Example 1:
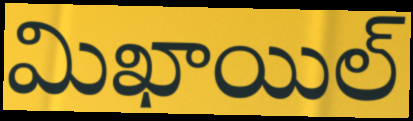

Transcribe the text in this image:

మిఖాయిల్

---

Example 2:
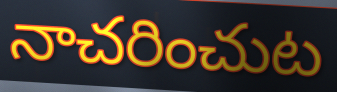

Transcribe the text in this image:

నాచరించుట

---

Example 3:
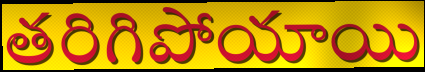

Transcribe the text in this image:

తరిగిపోయాయి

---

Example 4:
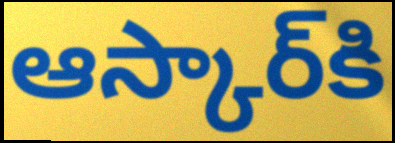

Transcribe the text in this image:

ఆస్కార్‌కి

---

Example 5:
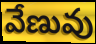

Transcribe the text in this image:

వేణువు